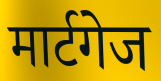
मार्टगेज